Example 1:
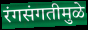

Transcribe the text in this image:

रंगसंगतीमुळे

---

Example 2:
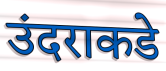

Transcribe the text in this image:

उंदराकडे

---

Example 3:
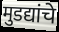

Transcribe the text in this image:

मुडद्यांचे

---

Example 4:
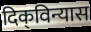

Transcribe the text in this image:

दिक्‌विन्यास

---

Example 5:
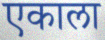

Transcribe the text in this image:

एकाला